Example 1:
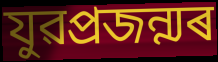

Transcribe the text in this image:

যুৱপ্ৰজন্মৰ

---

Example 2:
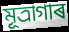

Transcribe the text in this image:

মূত্ৰাগাৰ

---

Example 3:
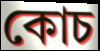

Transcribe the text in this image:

কোচ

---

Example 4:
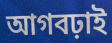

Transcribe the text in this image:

আগবঢ়াই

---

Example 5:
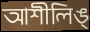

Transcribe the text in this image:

আশীলিঙ্